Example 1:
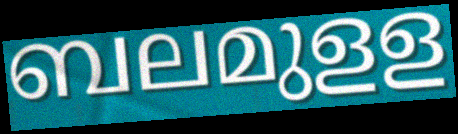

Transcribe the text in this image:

ബലമുളള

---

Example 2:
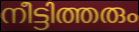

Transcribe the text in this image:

നീട്ടിത്തരും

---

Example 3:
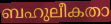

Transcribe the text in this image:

ബഹുലീകതാ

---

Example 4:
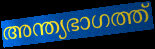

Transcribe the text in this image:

അന്ത്യഭാഗത്ത്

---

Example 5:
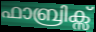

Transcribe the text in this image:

ഫാബ്രിക്സ്